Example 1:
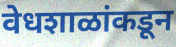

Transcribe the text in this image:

वेधशाळांकडून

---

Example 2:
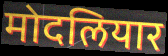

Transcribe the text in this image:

मोदलियार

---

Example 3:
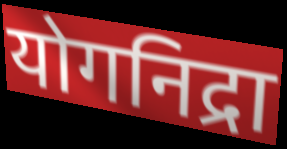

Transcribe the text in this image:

योगनिद्रा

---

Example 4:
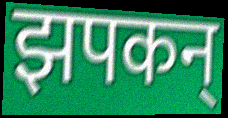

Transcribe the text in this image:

झपकन्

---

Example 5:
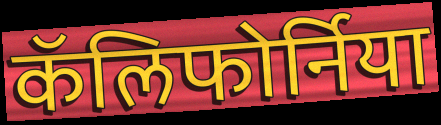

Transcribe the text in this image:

कॅलिफोर्निया